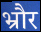
भ्रौर